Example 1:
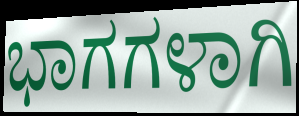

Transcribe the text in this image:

ಭಾಗಗಳಾಗಿ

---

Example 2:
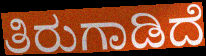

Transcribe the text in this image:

ತಿರುಗಾಡಿದೆ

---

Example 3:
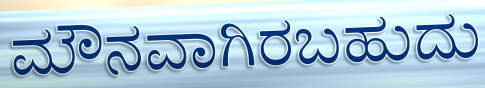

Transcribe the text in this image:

ಮೌನವಾಗಿರಬಹುದು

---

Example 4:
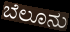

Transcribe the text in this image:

ಬೆಲೂನು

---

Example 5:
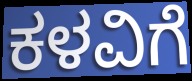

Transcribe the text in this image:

ಕಳವಿಗೆ